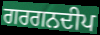
ਗਰਗਨਦੀਪ